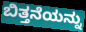
ಬಿತ್ತನೆಯನ್ನು